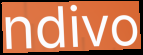
ndivo